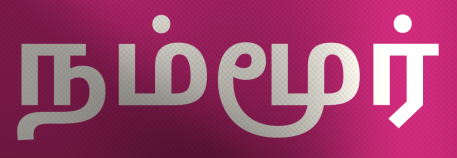
நம்மூர்